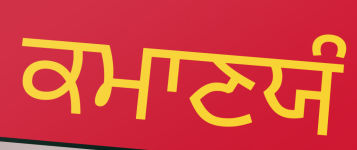
ਕਮਾਣਯੰ